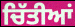
ਚਿੱਤੀਆਂ